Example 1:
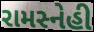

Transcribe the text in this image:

રામસ્નેહી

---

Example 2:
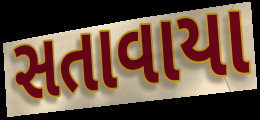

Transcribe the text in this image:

સતાવાયા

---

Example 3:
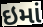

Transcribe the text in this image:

ઇમાં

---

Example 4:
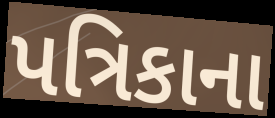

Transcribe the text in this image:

પત્રિકાના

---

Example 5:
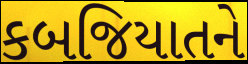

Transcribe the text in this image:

કબજિયાતને